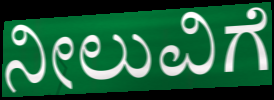
ನೀಲುವಿಗೆ